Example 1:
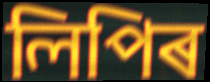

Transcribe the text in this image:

লিপিৰ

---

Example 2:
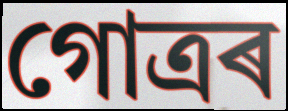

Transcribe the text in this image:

গোত্ৰৰ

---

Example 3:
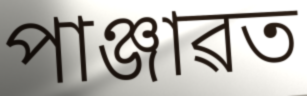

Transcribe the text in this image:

পাঞ্জাৱত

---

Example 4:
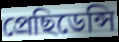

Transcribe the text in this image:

প্ৰেছিডেন্সি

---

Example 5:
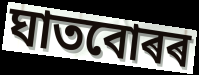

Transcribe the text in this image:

ঘাতবোৰৰ